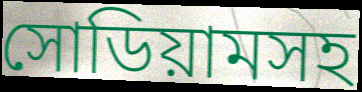
সোডিয়ামসহ